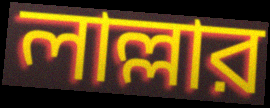
লাল্লার